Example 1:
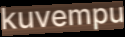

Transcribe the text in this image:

kuvempu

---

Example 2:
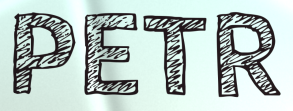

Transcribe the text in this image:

PETR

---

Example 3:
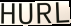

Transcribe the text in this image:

HURL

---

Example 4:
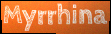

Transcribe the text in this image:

Myrrhina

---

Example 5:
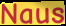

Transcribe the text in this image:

Naus